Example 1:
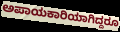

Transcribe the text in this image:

ಅಪಾಯಕಾರಿಯಾಗಿದ್ದರೂ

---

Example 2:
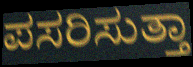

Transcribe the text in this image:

ಪಸರಿಸುತ್ತಾ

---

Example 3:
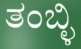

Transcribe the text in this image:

ತಂಬ್ಳಿ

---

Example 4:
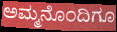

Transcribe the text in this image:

ಅಮ್ಮನೊಂದಿಗೂ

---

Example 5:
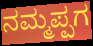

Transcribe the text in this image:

ನಮ್ಮಪ್ಪಗ